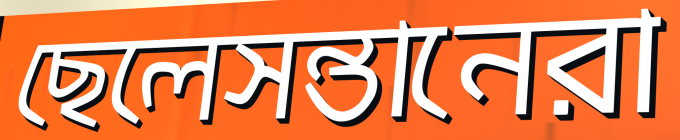
ছেলেসন্তানেরা